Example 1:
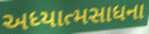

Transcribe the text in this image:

અધ્યાત્મસાધના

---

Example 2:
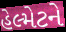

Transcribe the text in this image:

હેલ્મેટને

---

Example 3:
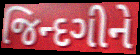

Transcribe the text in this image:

જિન્દગીને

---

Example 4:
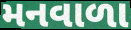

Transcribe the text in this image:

મનવાળા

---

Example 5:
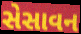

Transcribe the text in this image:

સેસાવન